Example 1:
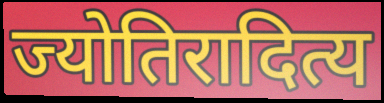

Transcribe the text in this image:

ज्योतिरादित्य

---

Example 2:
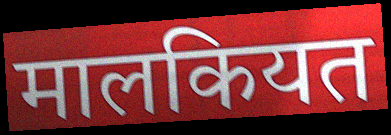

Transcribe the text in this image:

मालकियत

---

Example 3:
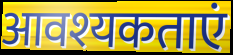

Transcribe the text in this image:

आवश्‍यकताएं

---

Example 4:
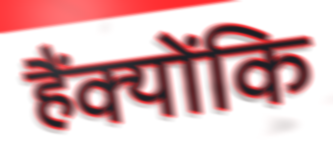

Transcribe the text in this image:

हैंक्योंकि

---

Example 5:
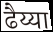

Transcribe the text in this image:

ढैय्या